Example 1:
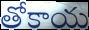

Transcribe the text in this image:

తోకాయ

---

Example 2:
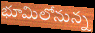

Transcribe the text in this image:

భూమిలోనున్న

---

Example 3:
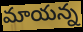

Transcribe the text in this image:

మాయన్న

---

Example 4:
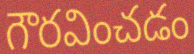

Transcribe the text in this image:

గౌరవించడం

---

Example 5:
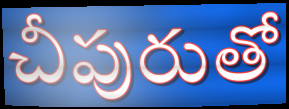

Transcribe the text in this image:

చీపురుతో